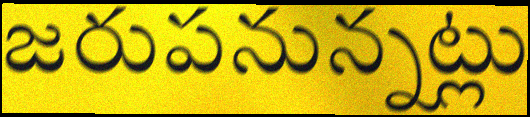
జరుపనున్నట్లు